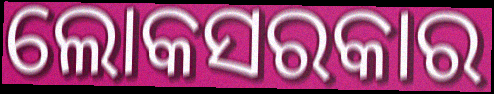
ଲୋକସରକାର